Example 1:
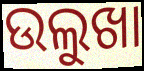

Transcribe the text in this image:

ଉଲୁଖା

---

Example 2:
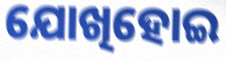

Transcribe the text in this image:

ଯୋଖିହୋଇ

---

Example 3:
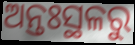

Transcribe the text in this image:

ଅନ୍ତଃସ୍ଥଳରୁ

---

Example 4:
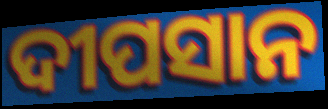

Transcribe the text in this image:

ଦୀପସାନ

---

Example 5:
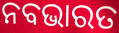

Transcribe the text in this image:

ନବଭାରତ